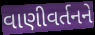
વાણીવર્તનને